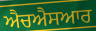
ਐਚਐਸਆਰ